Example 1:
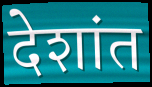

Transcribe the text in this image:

देशांत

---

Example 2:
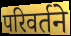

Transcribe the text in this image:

परिवर्तने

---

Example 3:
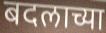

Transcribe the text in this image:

बदलाच्या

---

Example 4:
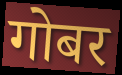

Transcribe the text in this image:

गोबर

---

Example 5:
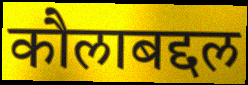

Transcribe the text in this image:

कौलाबद्दल